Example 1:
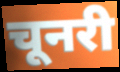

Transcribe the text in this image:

चूनरी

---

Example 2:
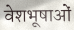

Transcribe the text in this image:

वेशभूषाओं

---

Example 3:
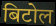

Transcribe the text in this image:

बिटोल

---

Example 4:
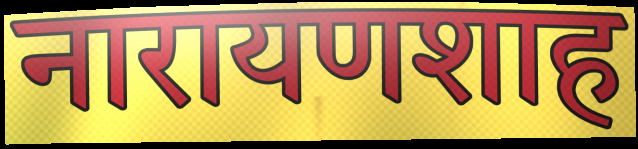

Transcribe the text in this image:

नारायणशाह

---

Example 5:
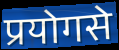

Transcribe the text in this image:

प्रयोगसे